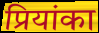
प्रियांका